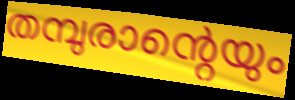
തമ്പുരാന്റെയും